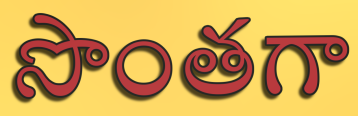
సొంతగా